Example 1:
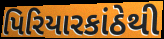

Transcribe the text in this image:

પિરિયારકાંઠેથી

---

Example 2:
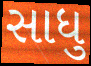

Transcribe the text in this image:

સાધુ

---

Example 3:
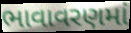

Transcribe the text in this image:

ભાવાવરણમાં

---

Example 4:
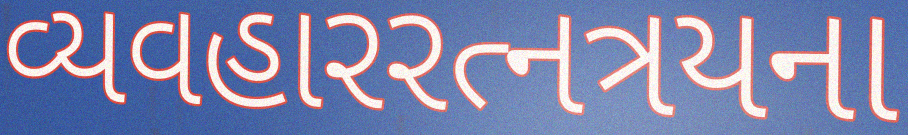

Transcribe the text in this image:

વ્યવહારરત્નત્રયના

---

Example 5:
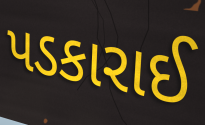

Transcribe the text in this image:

પડકારાઈ